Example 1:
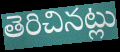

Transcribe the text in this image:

తెరిచినట్లు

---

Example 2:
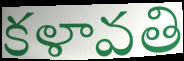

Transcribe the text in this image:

కళావతి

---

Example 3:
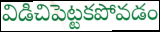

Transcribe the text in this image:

విడిచిపెట్టకపోవడం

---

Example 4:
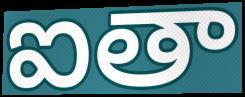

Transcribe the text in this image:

ఐతా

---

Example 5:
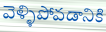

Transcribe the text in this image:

వెళ్ళిపోవడానికి